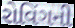
રોવિંગની